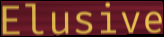
Elusive